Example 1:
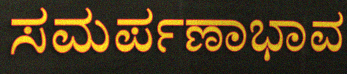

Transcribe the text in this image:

ಸಮರ್ಪಣಾಭಾವ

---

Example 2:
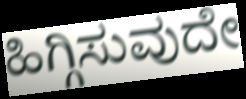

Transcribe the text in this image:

ಹಿಗ್ಗಿಸುವುದೇ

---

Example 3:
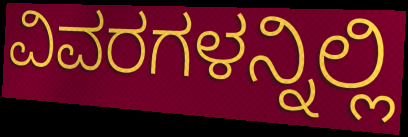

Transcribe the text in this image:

ವಿವರಗಳನ್ನಿಲ್ಲಿ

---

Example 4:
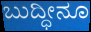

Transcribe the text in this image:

ಬುದ್ಧೀನೂ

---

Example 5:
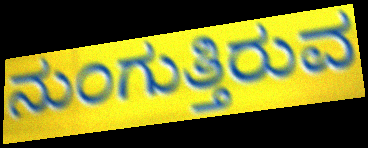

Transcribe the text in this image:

ನುಂಗುತ್ತಿರುವ